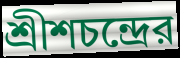
শ্রীশচন্দ্রের